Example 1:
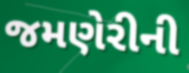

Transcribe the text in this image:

જમણેરીની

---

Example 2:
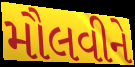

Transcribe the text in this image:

મૌલવીને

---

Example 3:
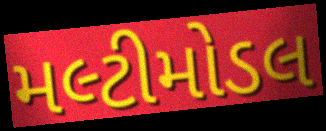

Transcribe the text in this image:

મલ્ટીમોડલ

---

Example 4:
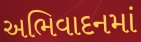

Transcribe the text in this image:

અભિવાદનમાં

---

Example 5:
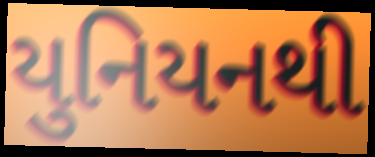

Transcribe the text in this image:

યુનિયનથી